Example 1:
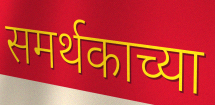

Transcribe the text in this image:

समर्थकाच्या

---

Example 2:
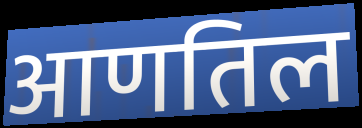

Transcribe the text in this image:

आणतिल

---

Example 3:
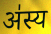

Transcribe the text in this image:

अ॑स्य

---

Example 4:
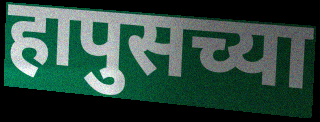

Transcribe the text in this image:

हापुसच्या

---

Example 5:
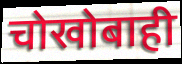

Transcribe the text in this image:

चोखोबाही